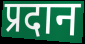
प्रदान